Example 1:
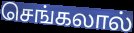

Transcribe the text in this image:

செங்கலால்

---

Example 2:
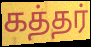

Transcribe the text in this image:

கத்தர்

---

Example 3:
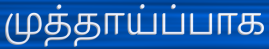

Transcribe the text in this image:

முத்தாய்ப்பாக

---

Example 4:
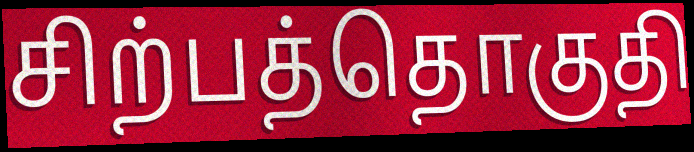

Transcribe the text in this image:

சிற்பத்தொகுதி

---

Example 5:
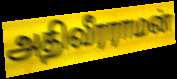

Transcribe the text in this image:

அதிவீரராமன்